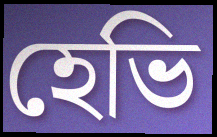
হেভি